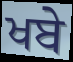
ਖਬੇ